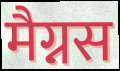
मैग्नस